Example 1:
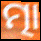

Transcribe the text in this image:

ତ୍ମା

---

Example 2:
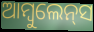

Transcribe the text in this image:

ଆମ୍ବୁଲେନ୍‌ସ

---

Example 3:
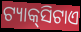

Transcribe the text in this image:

ଟ୍ୟାକ୍‌ସିଟାଏ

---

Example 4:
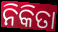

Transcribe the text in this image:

ନିକିତା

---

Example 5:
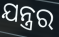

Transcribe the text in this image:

ଯନ୍ତ୍ରର